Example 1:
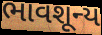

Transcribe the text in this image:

ભાવશૂન્ય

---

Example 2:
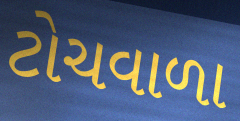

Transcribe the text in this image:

ટોચવાળા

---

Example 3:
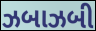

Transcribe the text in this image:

ઝબાઝબી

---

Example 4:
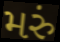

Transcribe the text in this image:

મરું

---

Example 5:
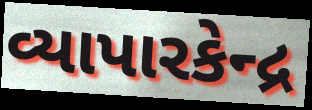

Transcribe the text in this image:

વ્યાપારકેન્દ્ર